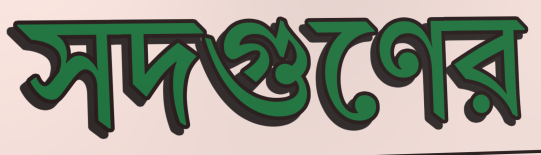
সদগুণের